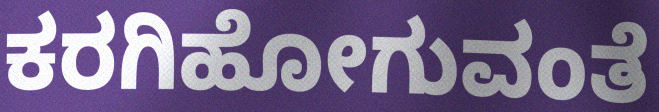
ಕರಗಿಹೋಗುವಂತೆ